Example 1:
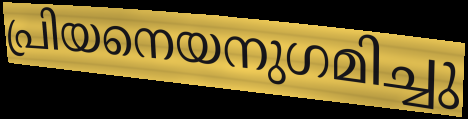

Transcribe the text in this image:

പ്രിയനെയനുഗമിച്ചു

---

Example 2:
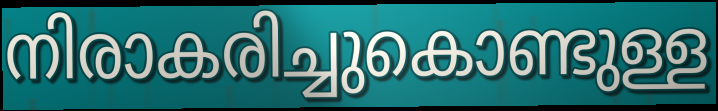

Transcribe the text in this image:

നിരാകരിച്ചുകൊണ്ടുള്ള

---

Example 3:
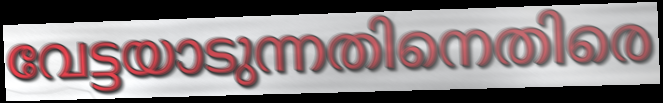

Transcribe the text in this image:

വേട്ടയാടുന്നതിനെതിരെ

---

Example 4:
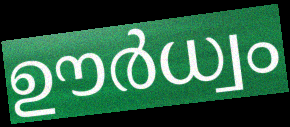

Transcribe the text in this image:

ഊർധ്വം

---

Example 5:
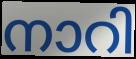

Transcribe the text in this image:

നാറി